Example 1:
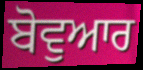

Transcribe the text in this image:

ਬੋਵੁਆਰ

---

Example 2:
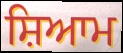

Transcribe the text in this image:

ਸ਼ਿਆਮ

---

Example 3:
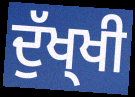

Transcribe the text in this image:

ਦੁੱਖ੍ਖੀ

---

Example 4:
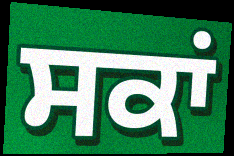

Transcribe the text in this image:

ਸਕਾਂ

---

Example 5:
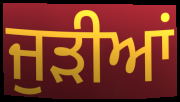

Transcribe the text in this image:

ਜੁੜੀਆਂ